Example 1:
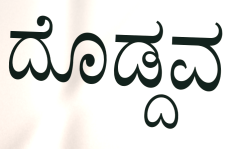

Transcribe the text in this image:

ದೊಡ್ದವ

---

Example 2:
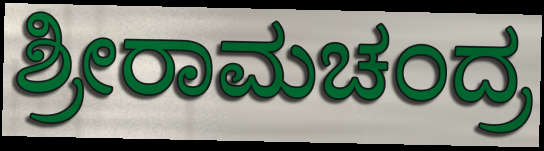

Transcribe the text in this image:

ಶ್ರೀರಾಮಚಂದ್ರ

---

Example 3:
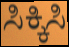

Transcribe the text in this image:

ಸಿಕ್ಕಿಸಿ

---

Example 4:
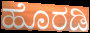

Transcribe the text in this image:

ಹೊರಡಿ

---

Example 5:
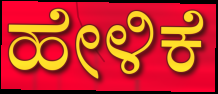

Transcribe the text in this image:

ಹೇಳಿಕೆ